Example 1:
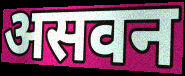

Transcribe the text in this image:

असवन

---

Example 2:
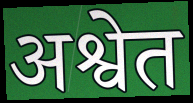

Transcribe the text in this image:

अश्वेत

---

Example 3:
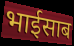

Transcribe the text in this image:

भाईसाब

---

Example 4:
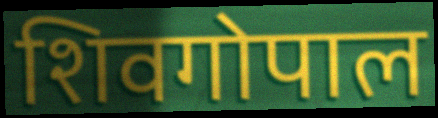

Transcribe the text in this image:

शिवगोपाल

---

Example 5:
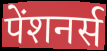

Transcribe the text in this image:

पेंशनर्स